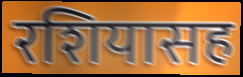
रशियासह